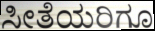
ಸೀತೆಯರಿಗೂ